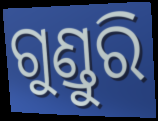
ଗୁଣ୍ଡୁରି